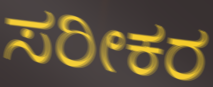
ಸರೀಕರ